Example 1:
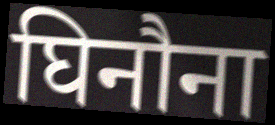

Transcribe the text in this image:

घिनौना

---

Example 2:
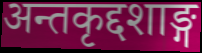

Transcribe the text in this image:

अन्तकृद्दशाङ्ग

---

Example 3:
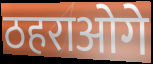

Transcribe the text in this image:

ठहराओगे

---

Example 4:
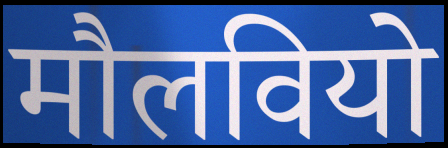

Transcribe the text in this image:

मौलवियो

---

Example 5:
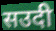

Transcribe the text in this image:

सउदी